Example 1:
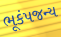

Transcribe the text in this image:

ભૂકંપજન્ય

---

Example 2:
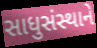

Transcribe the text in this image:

સાધુસંસ્થાને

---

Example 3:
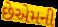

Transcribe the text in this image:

છેએમની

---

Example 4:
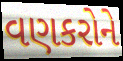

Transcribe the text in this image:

વણકરોને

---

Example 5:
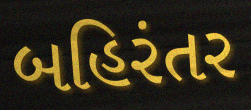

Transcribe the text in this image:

બહિરંતર